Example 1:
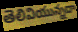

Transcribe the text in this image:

తెలివియున్నదా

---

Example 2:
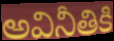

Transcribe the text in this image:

అవినీతికి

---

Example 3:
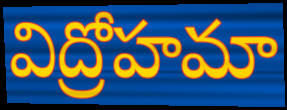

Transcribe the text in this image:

విద్రోహమా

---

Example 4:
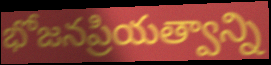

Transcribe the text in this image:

భోజనప్రియత్వాన్ని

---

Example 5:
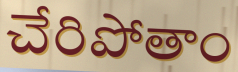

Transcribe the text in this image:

చేరిపోతాం